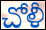
చోళీ